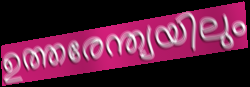
ഉത്തരേന്ത്യയിലും